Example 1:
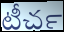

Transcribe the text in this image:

టీచర్‍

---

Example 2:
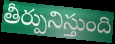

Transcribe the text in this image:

తీర్పునిస్తుంది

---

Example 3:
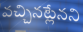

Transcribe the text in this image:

వచ్చినట్లేనని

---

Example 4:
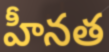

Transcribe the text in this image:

హీనత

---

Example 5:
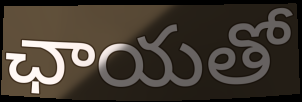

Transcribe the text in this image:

ఛాయతో